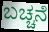
ಬಚ್ಚನೆ